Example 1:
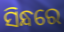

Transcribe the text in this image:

ସିନ୍ଧରେ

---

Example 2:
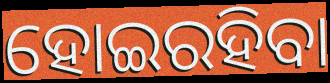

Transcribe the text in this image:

ହୋଇରହିବା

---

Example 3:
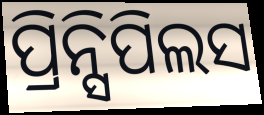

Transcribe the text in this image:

ପ୍ରିନ୍ସିପିଲସ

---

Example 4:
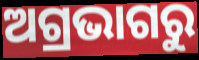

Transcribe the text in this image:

ଅଗ୍ରଭାଗରୁ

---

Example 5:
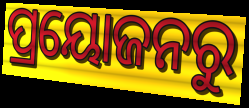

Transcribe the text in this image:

ପ୍ରୟୋଜନରୁ